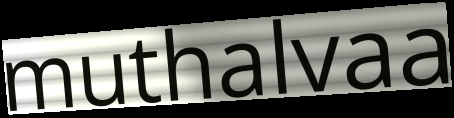
muthalvaa